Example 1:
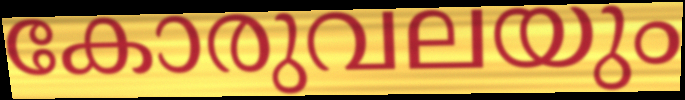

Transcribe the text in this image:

കോരുവലയും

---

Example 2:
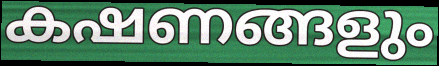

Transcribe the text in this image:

കഷണങ്ങളും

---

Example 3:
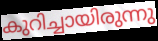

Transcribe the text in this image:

കുറിച്ചായിരുന്നു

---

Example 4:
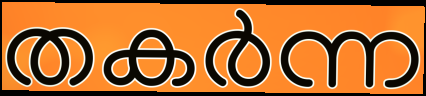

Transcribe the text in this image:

തകർന്ന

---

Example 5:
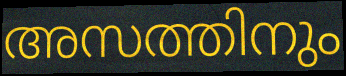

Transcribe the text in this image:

അസത്തിനും